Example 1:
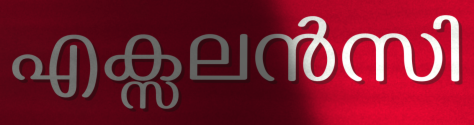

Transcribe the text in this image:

എക്സലൻസി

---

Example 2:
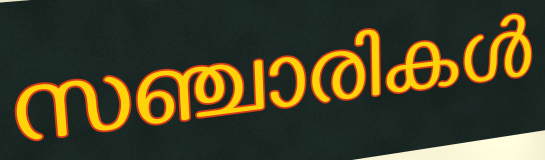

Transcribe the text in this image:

സഞ്ചാരികൾ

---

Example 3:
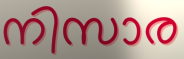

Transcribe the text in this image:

നിസാര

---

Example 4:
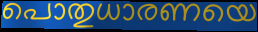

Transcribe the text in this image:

പൊതുധാരണയെ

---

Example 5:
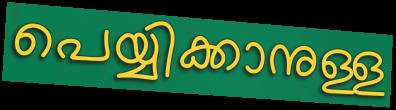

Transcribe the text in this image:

പെയ്യിക്കാനുള്ള